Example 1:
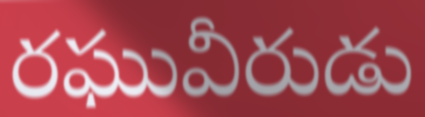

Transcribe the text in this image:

రఘువీరుడు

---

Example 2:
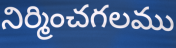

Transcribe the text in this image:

నిర్మించగలము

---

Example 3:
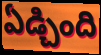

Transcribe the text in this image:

ఏడ్చింది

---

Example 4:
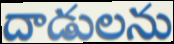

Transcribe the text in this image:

దాడులను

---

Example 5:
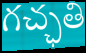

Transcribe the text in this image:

గచ్ఛతి